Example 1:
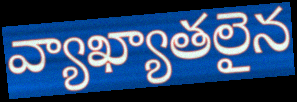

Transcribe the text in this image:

వ్యాఖ్యాతలైన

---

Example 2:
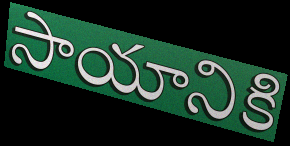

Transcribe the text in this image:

సాయానికి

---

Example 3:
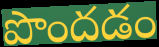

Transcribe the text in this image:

పొందడం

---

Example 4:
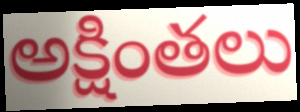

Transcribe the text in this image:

అక్షింతలు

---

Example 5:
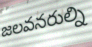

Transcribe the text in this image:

జలవనరుల్ని